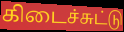
கிடைச்சுட்டு